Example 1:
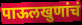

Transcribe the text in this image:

पाऊलखुणांचं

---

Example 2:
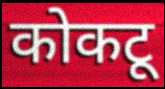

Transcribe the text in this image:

कोकटू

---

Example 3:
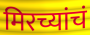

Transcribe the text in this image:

मिरच्यांचं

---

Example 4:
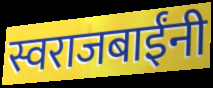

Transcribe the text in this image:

स्वराजबाईंनी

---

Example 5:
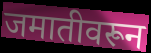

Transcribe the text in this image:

जमातीवरून